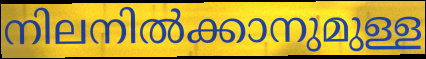
നിലനിൽക്കാനുമുള്ള